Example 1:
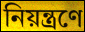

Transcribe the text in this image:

নিয়ন্ত্রণে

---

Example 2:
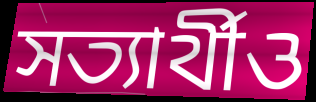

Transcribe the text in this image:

সত্যার্থীও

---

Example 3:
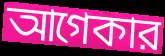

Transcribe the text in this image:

আগেকার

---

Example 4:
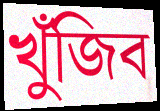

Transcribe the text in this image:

খুঁজিব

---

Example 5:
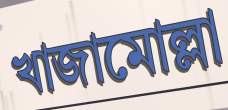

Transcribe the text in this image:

খাজামোল্লা